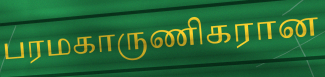
பரமகாருணிகரான